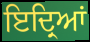
ਇਦ੍ਰਿਆਂ